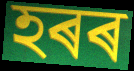
হৰৰ